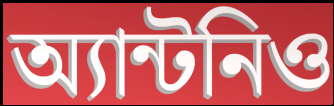
অ্যান্টনিও